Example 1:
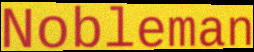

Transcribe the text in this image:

Nobleman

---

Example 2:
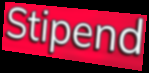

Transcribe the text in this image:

Stipend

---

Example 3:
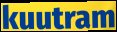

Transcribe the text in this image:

kuutram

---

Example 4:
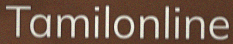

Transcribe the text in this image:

Tamilonline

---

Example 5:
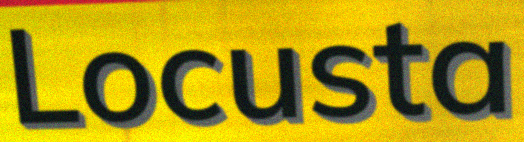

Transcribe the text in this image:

Locusta